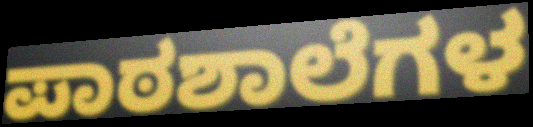
ಪಾಠಶಾಲೆಗಳ